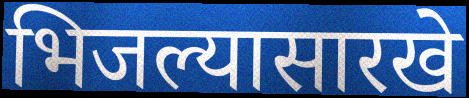
भिजल्यासारखे